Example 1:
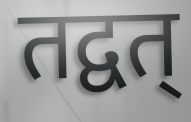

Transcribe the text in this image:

तद्वत्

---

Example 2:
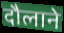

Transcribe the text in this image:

दौलाने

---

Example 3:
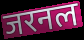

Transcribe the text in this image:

जरनल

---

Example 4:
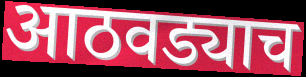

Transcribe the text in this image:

आठवड्याच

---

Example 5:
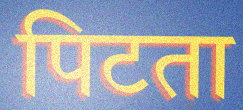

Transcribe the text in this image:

पिटता